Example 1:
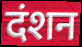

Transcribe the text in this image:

दंशन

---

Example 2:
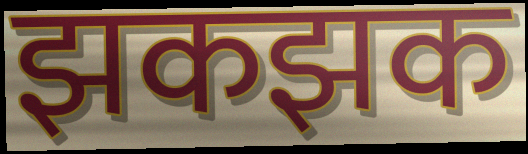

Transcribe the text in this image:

झकझक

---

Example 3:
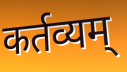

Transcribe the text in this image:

कर्तव्यम्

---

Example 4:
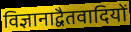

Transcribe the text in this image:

विज्ञानाद्वैतवादियों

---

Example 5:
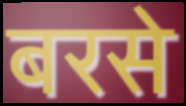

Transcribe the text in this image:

बरसे